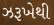
ઝરૂખેથી